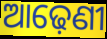
ଆଢ଼େଣୀ